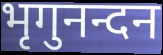
भृगुनन्दन